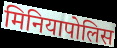
मिनियापोलिस